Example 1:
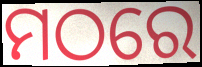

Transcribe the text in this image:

ମଠରେ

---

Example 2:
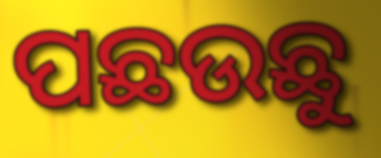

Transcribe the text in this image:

ପଛଉଛୁ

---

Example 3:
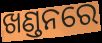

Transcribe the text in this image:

ଖଣ୍ଡନରେ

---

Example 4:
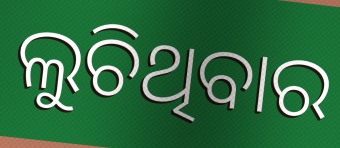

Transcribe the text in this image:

ଲୁଚିଥିବାର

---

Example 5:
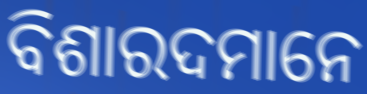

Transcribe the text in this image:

ବିଶାରଦମାନେ